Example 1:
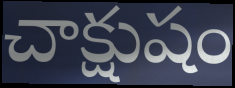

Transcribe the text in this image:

చాక్షుషం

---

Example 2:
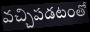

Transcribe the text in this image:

వచ్చిపడటంతో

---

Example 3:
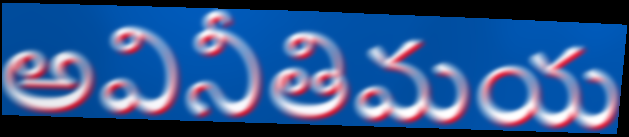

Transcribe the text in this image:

అవినీతిమయ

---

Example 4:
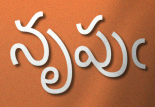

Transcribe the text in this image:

నృపుఁ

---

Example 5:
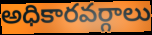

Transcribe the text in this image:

అధికారవర్గాలు